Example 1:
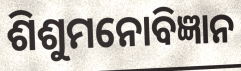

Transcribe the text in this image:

ଶିଶୁମନୋବିଜ୍ଞାନ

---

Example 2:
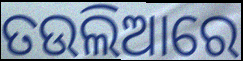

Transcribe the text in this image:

ତଉଲିଆରେ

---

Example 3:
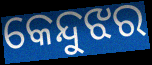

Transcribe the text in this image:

କେନ୍ଦୁଝର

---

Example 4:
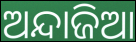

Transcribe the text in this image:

ଅନ୍ଦାଜିଆ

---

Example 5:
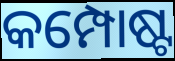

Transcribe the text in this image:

କମ୍ପୋଷ୍ଟ